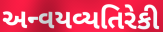
અન્વયવ્યતિરેકી